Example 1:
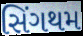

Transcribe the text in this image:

સિંગથમ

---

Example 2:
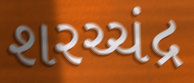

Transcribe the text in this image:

શરચ્ચંદ્ર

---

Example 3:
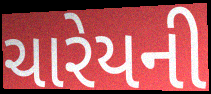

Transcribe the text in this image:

ચારેયની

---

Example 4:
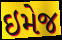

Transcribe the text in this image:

ઇમેજ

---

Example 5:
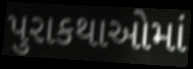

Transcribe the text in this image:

પુરાકથાઓમાં